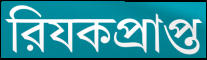
রিযকপ্রাপ্ত